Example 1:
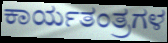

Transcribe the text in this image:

ಕಾರ್ಯತಂತ್ರಗಳ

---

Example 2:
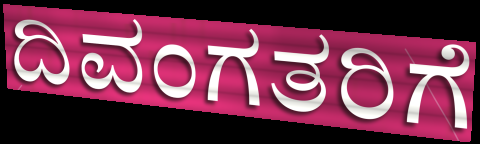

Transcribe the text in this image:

ದಿವಂಗತರಿಗೆ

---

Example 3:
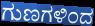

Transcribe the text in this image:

ಗುಣಗಳಿಂದ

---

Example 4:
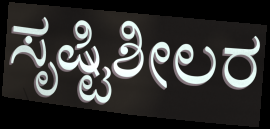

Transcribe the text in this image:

ಸೃಷ್ಟಿಶೀಲರ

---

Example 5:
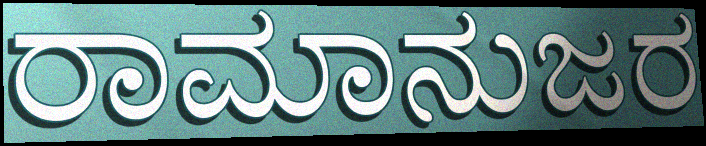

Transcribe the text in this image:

ರಾಮಾನುಜರ